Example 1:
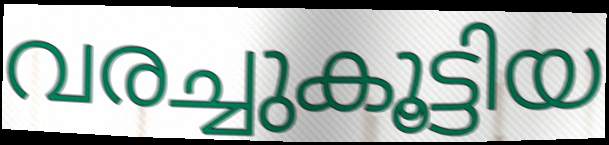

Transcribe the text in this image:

വരച്ചുകൂട്ടിയ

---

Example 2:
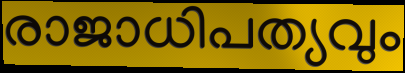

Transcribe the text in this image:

രാജാധിപത്യവും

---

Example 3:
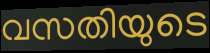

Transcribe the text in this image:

വസതിയുടെ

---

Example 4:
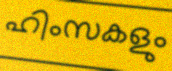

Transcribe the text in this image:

ഹിംസകളും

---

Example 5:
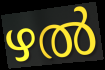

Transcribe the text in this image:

ഴൽ